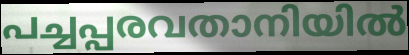
പച്ചപ്പരവതാനിയിൽ